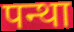
पन्‍था